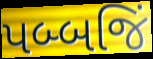
પબ્બજિં